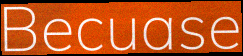
Becuase